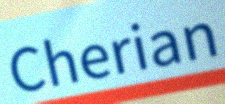
Cherian